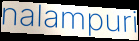
nalampuri